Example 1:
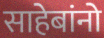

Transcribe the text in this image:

साहेबांनो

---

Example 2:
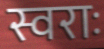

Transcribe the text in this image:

स्वराः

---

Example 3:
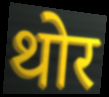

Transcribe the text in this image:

थोर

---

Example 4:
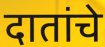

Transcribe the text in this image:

दातांचे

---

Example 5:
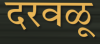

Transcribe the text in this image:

दरवळू